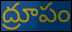
ద్రూపం